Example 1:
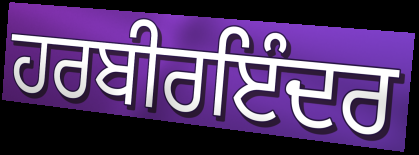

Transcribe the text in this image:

ਹਰਬੀਰਇੰਦਰ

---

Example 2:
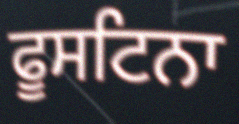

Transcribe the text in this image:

ਫੂਸਟਿਨਾ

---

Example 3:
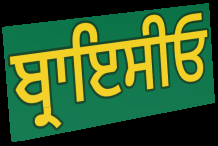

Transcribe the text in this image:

ਬ੍ਰਾਇਸੀਓ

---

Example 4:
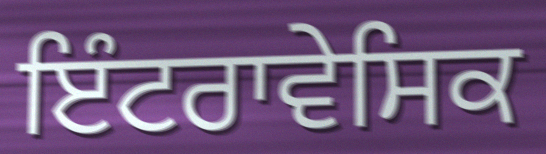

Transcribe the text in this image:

ਇੰਟਰਾਵੇਸਿਕ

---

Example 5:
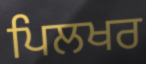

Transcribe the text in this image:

ਪਿਲਖਰ